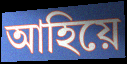
আহিয়ে